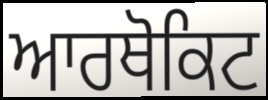
ਆਰਥੋਕਿਟ